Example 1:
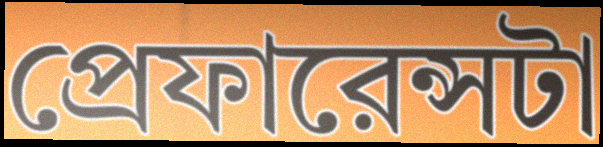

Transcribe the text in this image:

প্রেফারেন্সটা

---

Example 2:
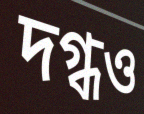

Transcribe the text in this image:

দগ্ধও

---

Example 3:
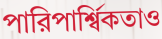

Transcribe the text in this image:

পারিপার্শ্বিকতাও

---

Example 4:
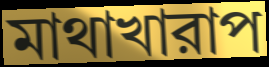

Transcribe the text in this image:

মাথাখারাপ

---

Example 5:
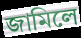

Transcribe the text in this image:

জামিলে